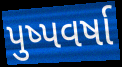
પુષ્પવર્ષા